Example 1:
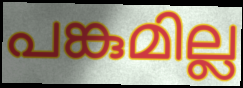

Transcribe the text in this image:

പങ്കുമില്ല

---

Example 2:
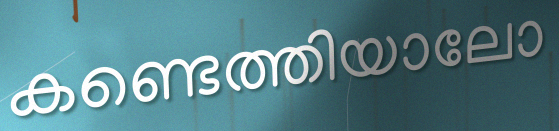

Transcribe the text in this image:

കണ്ടെത്തിയാലോ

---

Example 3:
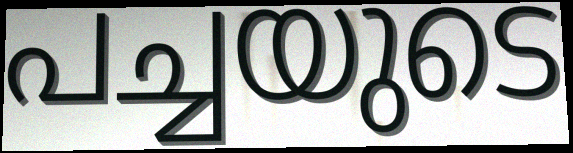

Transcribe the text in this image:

പച്ചയുടെ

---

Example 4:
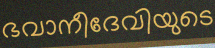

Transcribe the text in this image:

ഭവാനീദേവിയുടെ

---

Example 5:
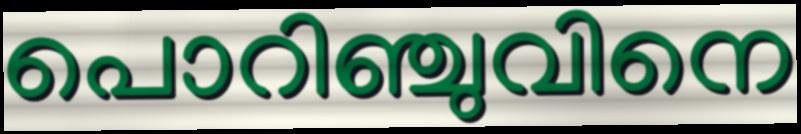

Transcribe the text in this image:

പൊറിഞ്ചുവിനെ